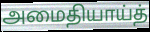
அமைதியாய்த்